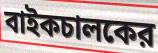
বাইকচালকের